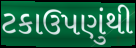
ટકાઉપણુંથી